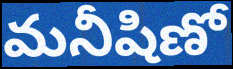
మనీషిణో